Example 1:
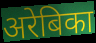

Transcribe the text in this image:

अरेबिका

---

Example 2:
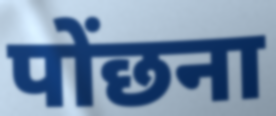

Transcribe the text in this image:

पोंछना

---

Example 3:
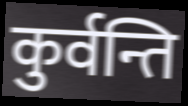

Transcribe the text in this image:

कुर्वन्ति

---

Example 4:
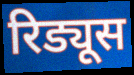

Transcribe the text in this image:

रिड्यूस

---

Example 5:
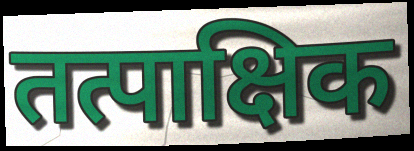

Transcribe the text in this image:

तत्पाक्षिक